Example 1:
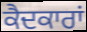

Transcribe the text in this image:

ਕੈਦਕਾਰਾਂ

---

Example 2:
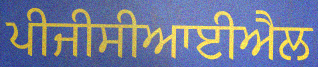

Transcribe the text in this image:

ਪੀਜੀਸੀਆਈਐਲ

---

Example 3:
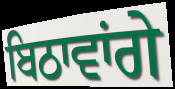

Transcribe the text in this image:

ਬਿਠਾਵਾਂਗੇ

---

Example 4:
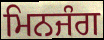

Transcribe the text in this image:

ਮਿਨਜੰਗ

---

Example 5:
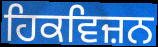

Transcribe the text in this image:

ਹਿਕਵਿਜ਼ਨ